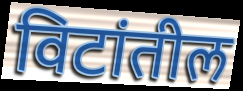
विटांतील